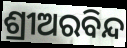
ଶ୍ରୀଅରବିନ୍ଦ